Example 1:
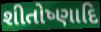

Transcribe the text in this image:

શીતોષ્ણાદિ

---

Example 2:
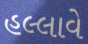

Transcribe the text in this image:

હલ્લાવે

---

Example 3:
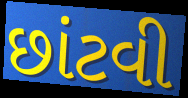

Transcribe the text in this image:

છાંટવી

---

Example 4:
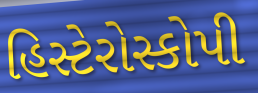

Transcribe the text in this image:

હિસ્ટેરોસ્કોપી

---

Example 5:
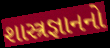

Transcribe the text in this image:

શાસ્ત્રજ્ઞાનનો